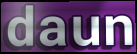
daun